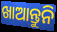
ଖାଆନ୍ତୁନି